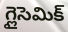
గ్లైసెమిక్